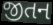
જીતન